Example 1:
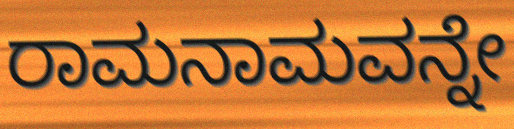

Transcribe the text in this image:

ರಾಮನಾಮವನ್ನೇ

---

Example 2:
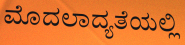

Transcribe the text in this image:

ಮೊದಲಾದ್ಯತೆಯಲ್ಲಿ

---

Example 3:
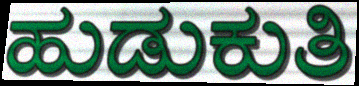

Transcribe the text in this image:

ಹುಡುಕುತಿ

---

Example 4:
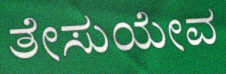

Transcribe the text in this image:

ತೇಸುಯೇವ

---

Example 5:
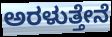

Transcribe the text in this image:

ಅರಳುತ್ತೇನೆ